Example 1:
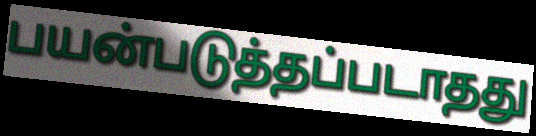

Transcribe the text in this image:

பயன்படுத்தப்படாதது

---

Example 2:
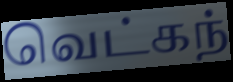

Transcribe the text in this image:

வெட்கந்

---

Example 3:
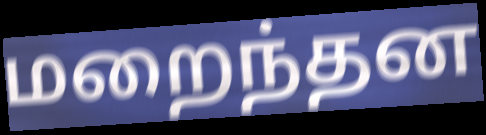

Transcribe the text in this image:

மறைந்தன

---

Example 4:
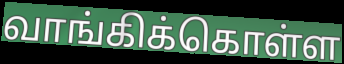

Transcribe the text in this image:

வாங்கிக்கொள்ள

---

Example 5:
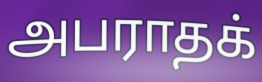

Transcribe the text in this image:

அபராதக்